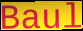
Baul